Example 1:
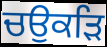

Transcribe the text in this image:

ਚਉਕੜਿ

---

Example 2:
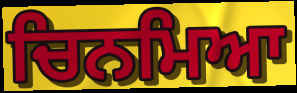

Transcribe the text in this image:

ਚਿਨਮਿਆ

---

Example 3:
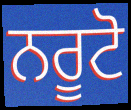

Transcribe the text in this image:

ਨਰੂਟੋ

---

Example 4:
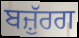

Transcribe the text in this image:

ਬਜ਼ੁੱਰਗ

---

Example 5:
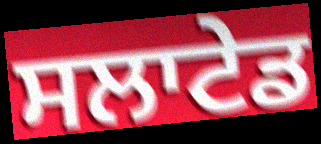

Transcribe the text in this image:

ਸਲਾਟੇਡ